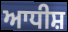
ਆਧੀਸ਼